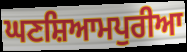
ਘਣਸ਼ਿਆਮਪੁਰੀਆ